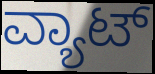
ವ್ಯಾಟ್